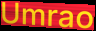
Umrao